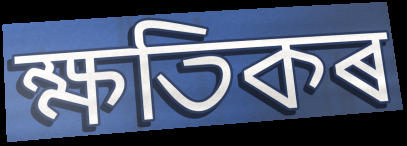
ক্ষতিকৰ